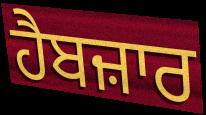
ਹੈਬਜ਼ਾਰ